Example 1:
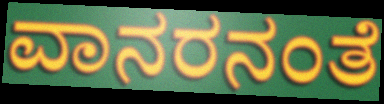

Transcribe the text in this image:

ವಾನರನಂತೆ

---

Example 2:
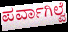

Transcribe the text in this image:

ಪರ್ವಾಗಿಲ್ವೆ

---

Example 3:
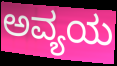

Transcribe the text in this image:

ಅವ್ಯಯ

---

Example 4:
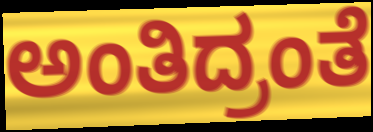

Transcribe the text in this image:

ಅಂತಿದ್ರಂತೆ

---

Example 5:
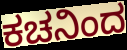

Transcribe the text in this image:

ಕಚನಿಂದ